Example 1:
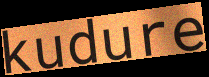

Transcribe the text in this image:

kudure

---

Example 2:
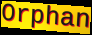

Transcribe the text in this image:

Orphan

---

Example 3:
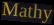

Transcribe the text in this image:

Mathy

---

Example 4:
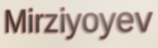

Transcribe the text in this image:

Mirziyoyev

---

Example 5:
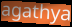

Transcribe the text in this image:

agathya